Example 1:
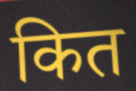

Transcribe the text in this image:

कित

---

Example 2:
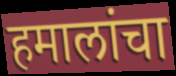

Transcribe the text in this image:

हमालांचा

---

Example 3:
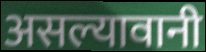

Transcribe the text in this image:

असल्यावानी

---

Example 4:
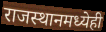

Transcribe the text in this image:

राजस्थानमध्येही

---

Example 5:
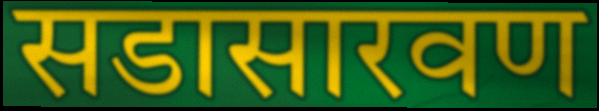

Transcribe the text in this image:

सडासारवण